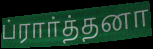
ப்ரார்த்தனா